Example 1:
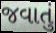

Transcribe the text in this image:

જવાતું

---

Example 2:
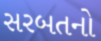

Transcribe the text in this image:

સરબતનો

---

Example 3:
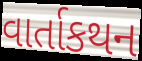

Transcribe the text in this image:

વાર્તાકથન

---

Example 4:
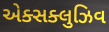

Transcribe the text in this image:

એક્સક્લુઝિવ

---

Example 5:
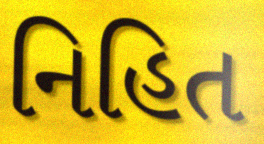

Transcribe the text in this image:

નિહિત